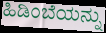
ಹಿಡಿಂಬೆಯನ್ನು